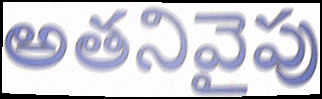
అతనివైపు